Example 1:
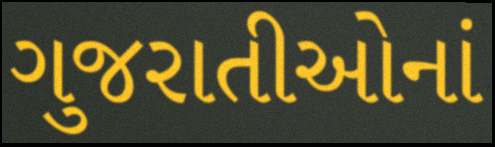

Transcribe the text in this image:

ગુજરાતીઓનાં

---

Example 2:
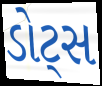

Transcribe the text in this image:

ડોટ્સ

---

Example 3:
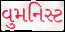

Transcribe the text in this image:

વુમનિસ્ટ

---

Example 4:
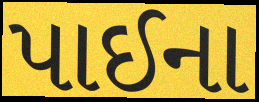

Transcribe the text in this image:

પાઈના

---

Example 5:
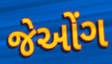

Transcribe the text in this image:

જેઓંગ